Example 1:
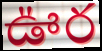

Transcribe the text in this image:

ఊర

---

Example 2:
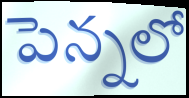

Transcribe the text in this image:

పెన్నలో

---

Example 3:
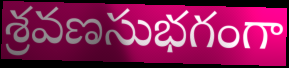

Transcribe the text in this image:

శ్రవణసుభగంగా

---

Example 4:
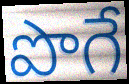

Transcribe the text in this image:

పొగే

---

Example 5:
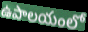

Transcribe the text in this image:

ఉపాలయంలో